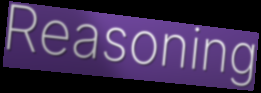
Reasoning